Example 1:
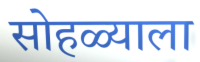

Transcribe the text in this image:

सोहळ्याला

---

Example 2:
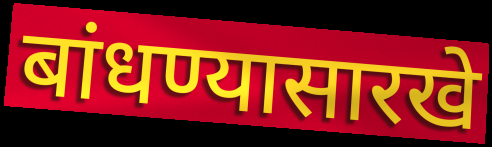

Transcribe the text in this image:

बांधण्यासारखे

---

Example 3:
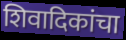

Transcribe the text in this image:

शिवादिकांचा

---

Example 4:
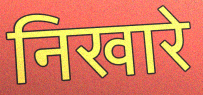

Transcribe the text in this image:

निखारे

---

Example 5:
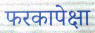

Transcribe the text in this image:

फरकापेक्षा